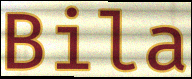
Bila